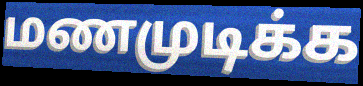
மணமுடிக்க